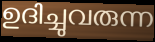
ഉദിച്ചുവരുന്ന